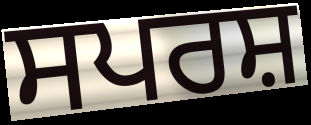
ਸਪਰਸ਼